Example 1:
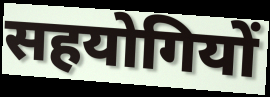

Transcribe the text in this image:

सहयोगियों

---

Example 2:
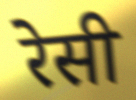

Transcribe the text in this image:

रेसी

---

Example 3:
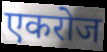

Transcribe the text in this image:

एकरोज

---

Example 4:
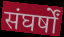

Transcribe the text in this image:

संघर्षों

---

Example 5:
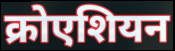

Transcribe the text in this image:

क्रोएशियन